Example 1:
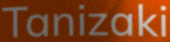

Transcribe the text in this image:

Tanizaki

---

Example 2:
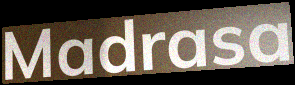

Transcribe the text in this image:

Madrasa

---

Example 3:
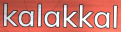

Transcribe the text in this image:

kalakkal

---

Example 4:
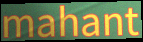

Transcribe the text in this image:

mahant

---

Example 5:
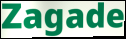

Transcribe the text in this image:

Zagade